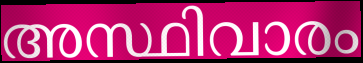
അസ്ഥിവാരം